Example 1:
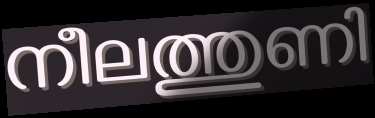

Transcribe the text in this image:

നീലത്തുണി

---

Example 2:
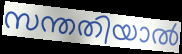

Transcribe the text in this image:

സന്തതിയാൽ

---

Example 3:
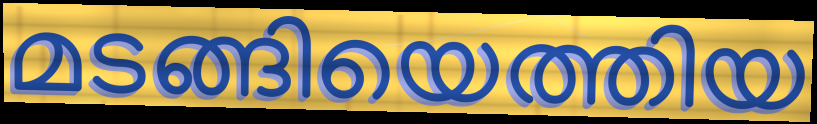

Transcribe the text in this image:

മടങ്ങിയെത്തിയ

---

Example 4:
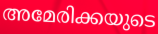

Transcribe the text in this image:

അമേരിക്കയുടെ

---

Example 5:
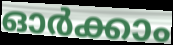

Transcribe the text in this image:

ഓർക്കാം